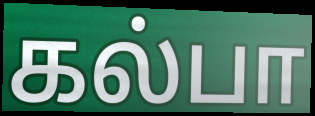
கல்பா